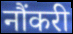
नौंकरी